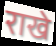
राखे